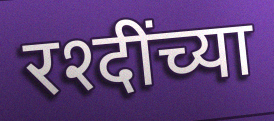
रश्दींच्या